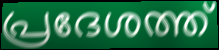
പ്രദേശത്ത്